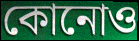
কোনোও